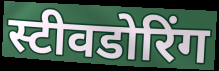
स्टीवडोरिंग